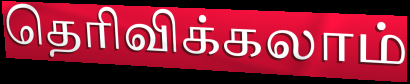
தெரிவிக்கலாம்